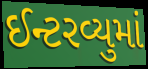
ઈન્ટરવ્યુમાં